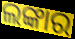
ଲଙ୍କାର